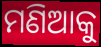
ମଣିଆକୁ